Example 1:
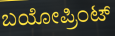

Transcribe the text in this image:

ಬಯೋಪ್ರಿಂಟ್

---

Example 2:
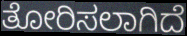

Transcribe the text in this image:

ತೋರಿಸಲಾಗಿದೆ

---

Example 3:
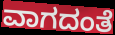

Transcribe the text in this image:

ವಾಗದಂತೆ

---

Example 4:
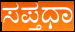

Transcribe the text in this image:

ಸಪ್ತಧಾ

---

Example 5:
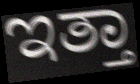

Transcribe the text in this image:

ಇತ್ತಾ